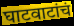
घाटवाटांचं